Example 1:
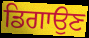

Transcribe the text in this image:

ਡਿਗਾਉਣ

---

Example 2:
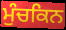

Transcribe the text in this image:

ਮੁੰਚਕਿਨ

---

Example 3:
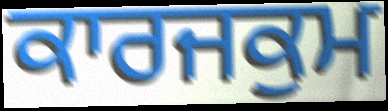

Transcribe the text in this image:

ਕਾਰਜਕੁਮ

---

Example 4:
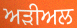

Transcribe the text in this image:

ਅੜੀਅਲ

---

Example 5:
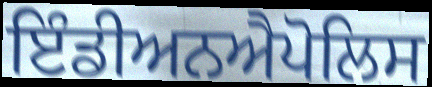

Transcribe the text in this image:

ਇੰਡੀਅਨਐਪੋਲਿਸ